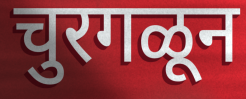
चुरगळून